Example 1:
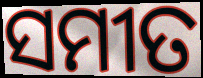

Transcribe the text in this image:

ସମୀତ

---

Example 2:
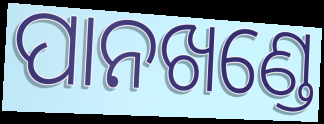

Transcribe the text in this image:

ପାନଖଣ୍ଡେ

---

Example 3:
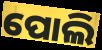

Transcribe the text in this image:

ପୋଲି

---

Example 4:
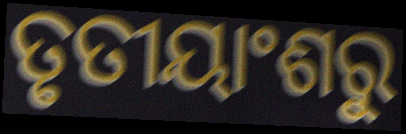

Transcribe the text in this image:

ତୃତୀୟାଂଶରୁ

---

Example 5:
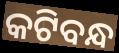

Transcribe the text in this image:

କଟିବନ୍ଧ